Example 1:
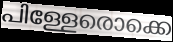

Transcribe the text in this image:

പിള്ളേരൊക്കെ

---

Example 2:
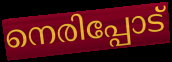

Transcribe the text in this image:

നെരിപ്പോട്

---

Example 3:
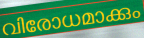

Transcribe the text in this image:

വിരോധമാക്കും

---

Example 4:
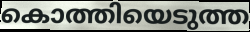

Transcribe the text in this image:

കൊത്തിയെടുത്ത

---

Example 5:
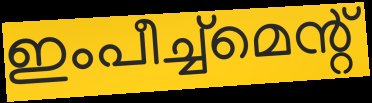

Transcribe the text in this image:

ഇംപീച്ച്മെന്റ്